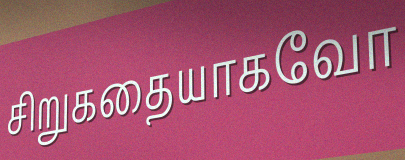
சிறுகதையாகவோ